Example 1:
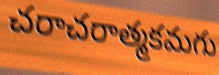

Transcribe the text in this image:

చరాచరాత్మకమగు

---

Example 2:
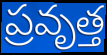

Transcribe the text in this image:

ప్రవృత్త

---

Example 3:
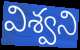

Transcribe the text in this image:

విశ్వని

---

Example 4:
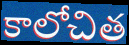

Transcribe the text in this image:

కాలోచిత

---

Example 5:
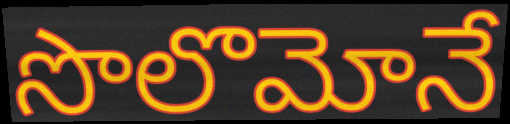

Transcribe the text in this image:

సొలొమోనే